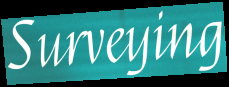
Surveying